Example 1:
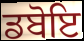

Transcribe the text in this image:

ਡਬੋਇ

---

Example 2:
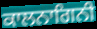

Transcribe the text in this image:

ਕਾਲਨਾਗਿਨੀ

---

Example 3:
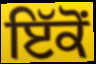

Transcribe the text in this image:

ਇੱਕੋਂ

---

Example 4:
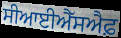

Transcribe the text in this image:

ਸੀਆਈਐੱਸਐਫ਼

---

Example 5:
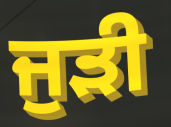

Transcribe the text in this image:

ਜੁੜੀ